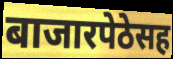
बाजारपेठेसह